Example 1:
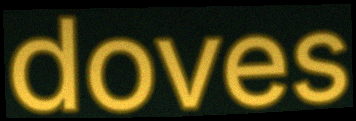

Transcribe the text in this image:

doves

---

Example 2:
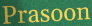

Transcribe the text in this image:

Prasoon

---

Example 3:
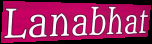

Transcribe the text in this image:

Lanabhat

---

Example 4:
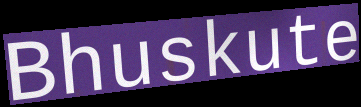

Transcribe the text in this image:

Bhuskute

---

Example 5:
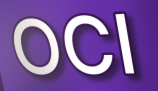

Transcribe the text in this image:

OCI